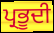
ਪ੍ਰਭੂਦੀ